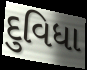
દુવિધા